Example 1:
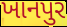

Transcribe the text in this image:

ખાનપુર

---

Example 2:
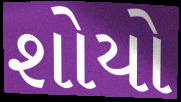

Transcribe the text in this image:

શોયો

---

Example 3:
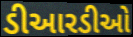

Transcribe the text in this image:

ડીઆરડીઓ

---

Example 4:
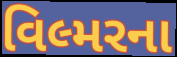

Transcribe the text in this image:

વિલ્મરના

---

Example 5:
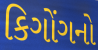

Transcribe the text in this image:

કિગોંગનો